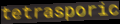
tetrasporic